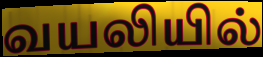
வயலியில்